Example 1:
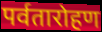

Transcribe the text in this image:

पर्वतारोहण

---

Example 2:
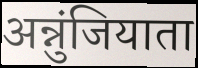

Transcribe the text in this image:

अन्नुंजियाता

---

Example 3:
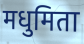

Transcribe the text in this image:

मधुमिता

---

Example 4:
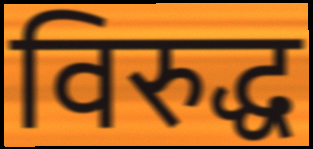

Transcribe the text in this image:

विरुद्ध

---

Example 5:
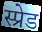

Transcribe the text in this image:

स्प्रेड